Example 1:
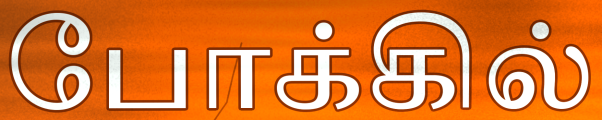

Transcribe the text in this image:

போக்கில்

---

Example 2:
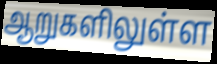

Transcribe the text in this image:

ஆறுகளிலுள்ள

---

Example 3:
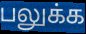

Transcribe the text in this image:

பலுக்க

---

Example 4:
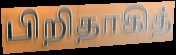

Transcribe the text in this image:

பிறிதாகித்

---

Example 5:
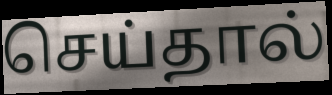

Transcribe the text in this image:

செய்தால்